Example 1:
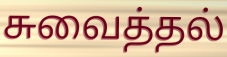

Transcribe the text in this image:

சுவைத்தல்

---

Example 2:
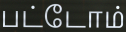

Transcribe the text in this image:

பட்டோம்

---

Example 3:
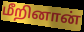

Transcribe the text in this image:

மீறினான்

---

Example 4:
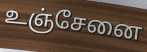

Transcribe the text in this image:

உஞ்சேனை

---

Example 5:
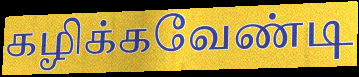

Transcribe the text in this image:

கழிக்கவேண்டி